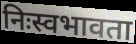
निःस्वभावता